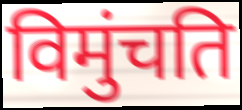
विमुंचति